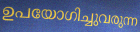
ഉപയോഗിച്ചുവരുന്ന